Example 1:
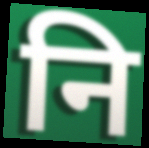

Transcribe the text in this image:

नि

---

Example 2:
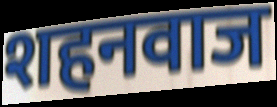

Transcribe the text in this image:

शहनवाज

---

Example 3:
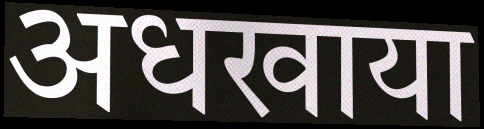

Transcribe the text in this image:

अधखाया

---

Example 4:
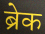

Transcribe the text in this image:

ब्रेक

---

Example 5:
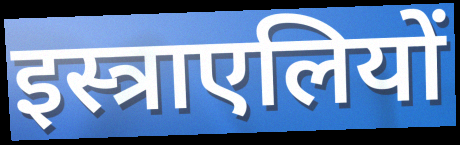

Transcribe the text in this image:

इस्त्राएलियों